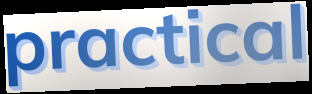
practical